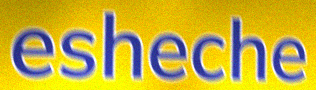
esheche